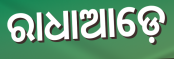
ରାଧାଆଡ଼େ